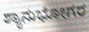
ಶ್ಯಾನುಭೋಗರ